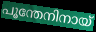
പൂന്തേനിനായ്